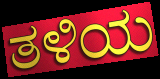
ತಳಿಯ